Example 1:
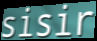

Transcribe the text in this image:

sisir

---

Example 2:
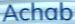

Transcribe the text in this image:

Achab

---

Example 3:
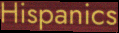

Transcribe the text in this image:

Hispanics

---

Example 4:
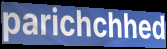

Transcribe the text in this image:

parichchhed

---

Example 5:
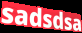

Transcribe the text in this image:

sadsdsa